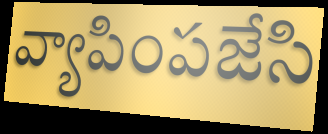
వ్యాపింపజేసి